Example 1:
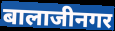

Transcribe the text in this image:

बालाजीनगर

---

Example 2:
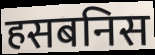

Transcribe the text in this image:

हसबनिस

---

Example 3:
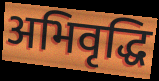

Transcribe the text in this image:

अभिवृद्धि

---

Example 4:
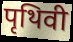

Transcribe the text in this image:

पृथिवी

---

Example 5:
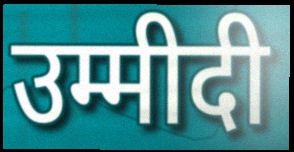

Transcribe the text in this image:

उम्मीदी